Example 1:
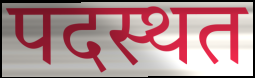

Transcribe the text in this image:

पदस्थत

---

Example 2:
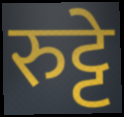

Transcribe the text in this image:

रुट्टे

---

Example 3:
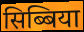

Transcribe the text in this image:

सिब्बिया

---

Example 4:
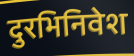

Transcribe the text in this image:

दुरभिनिवेश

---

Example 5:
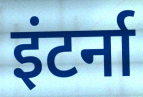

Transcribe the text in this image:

इंटर्ना